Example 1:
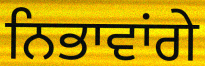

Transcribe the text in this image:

ਨਿਭਾਵਾਂਗੇ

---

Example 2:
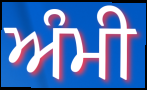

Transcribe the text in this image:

ਅੰਮੀ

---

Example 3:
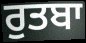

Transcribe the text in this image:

ਰੁਤਬਾ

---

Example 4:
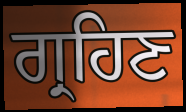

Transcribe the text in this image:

ਗ੍ਰਹਿਣ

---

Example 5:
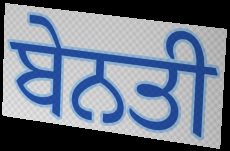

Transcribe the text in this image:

ਬੇਨਤੀ